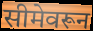
सीमेवरून